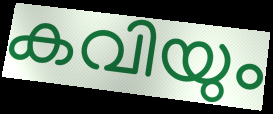
കവിയും